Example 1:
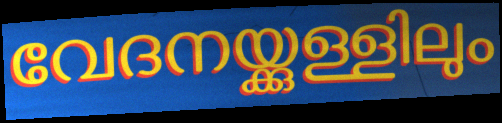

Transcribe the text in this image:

വേദനയ്ക്കുള്ളിലും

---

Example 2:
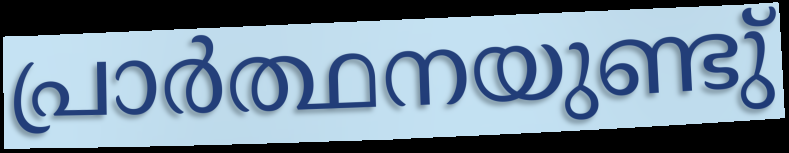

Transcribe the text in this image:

പ്രാർത്ഥനയുണ്ടു്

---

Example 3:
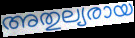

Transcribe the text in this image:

അതുല്യരായ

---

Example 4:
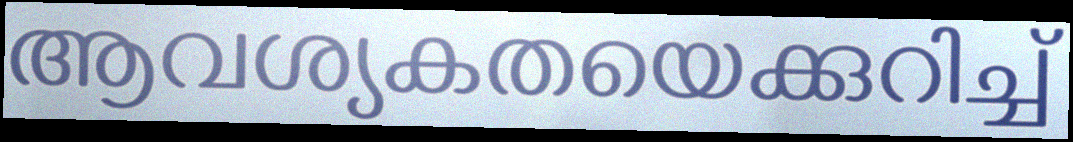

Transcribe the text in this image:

ആവശ്യകതയെക്കുറിച്ച്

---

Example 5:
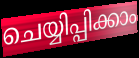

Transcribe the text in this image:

ചെയ്യിപ്പിക്കാം